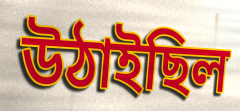
উঠাইছিল